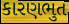
કારણભુત